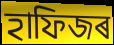
হাফিজৰ